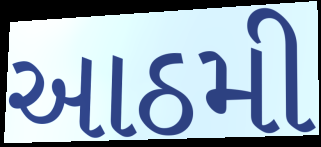
આઠમી